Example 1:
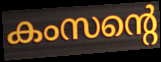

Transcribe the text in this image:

കംസന്റെ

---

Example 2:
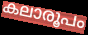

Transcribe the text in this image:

കലാരൂപം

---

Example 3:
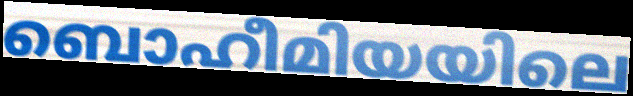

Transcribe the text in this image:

ബൊഹീമിയയിലെ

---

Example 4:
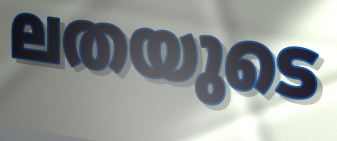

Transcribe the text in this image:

ലതയുടെ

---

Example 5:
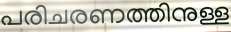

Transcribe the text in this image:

പരിചരണത്തിനുള്ള